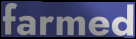
farmed